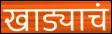
खाड्याचं